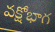
వక్షోభాగ